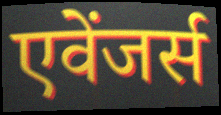
एवेंजर्स